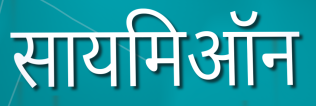
सायमिऑन